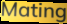
Mating